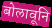
बोलावूनि